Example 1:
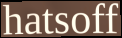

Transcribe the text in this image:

hatsoff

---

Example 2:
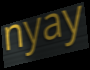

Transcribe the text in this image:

nyay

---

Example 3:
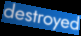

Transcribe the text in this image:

destroyed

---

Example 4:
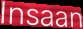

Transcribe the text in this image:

Insaan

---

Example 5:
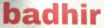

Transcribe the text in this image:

badhir